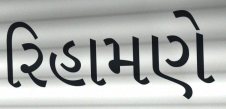
રિહામણે